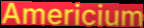
Americium